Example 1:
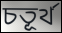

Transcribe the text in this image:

চতূর্থ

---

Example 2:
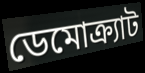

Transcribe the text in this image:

ডেমোক্র্যাট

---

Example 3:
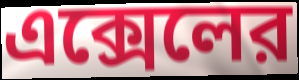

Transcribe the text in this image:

এক্সেলের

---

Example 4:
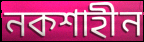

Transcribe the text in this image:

নকশাহীন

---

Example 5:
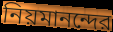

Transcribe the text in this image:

নিয়মানন্দের